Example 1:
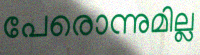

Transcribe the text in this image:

പേരൊന്നുമില്ല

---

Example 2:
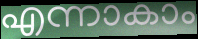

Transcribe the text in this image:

എന്നാകാം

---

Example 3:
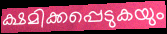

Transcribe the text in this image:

ക്ഷമിക്കപ്പെടുകയും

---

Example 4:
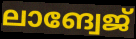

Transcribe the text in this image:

ലാങ്വേജ്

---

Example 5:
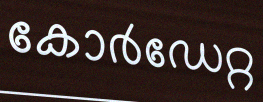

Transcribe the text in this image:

കോർഡേറ്റ